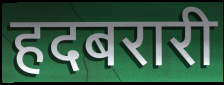
हदबरारी